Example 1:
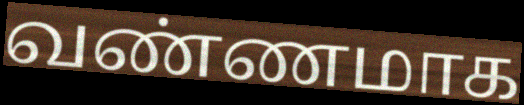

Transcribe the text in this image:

வண்ணமாக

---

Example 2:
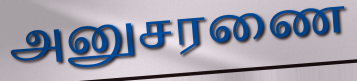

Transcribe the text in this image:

அனுசரணை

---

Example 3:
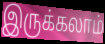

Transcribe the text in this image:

இருக்கலாம்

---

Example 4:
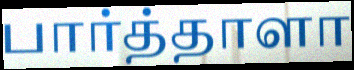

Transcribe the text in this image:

பார்த்தாளா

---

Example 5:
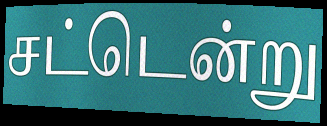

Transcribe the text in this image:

சட்டென்று